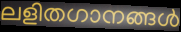
ലളിതഗാനങ്ങൾ